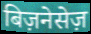
बिज़नेसेज़